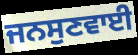
ਜਨਸੁਣਵਾਈ